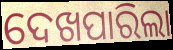
ଦେଖପାରିଲା